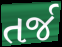
તર્જ